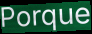
Porque